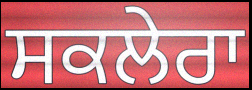
ਸਕਲੇਰਾ